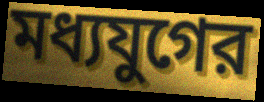
মধ্যযুগের